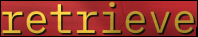
retrieve